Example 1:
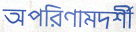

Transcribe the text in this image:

অপরিণামদর্শী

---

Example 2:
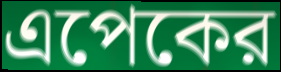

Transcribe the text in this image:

এপেকের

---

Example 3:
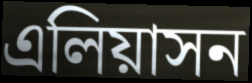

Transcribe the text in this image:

এলিয়াসন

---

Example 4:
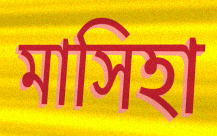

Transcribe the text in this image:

মাসিহা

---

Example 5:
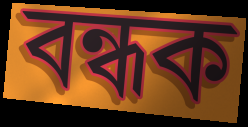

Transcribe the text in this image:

বন্ধক